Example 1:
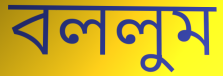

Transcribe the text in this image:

বললুম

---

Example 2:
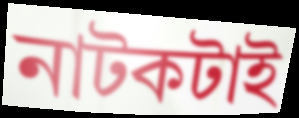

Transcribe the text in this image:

নাটকটাই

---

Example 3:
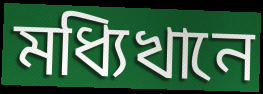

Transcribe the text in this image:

মধ্যিখানে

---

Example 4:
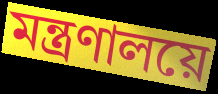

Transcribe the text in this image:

মন্ত্রণালয়ে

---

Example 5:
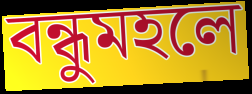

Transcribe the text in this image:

বন্ধুমহলে